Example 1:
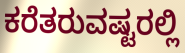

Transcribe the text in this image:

ಕರೆತರುವಷ್ಟರಲ್ಲಿ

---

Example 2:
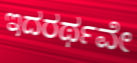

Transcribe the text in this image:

ಇದರರ್ಥವೇ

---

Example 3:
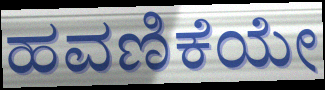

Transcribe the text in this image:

ಹವಣಿಕೆಯೇ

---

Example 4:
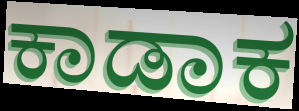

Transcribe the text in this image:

ಕಾಡಾಕ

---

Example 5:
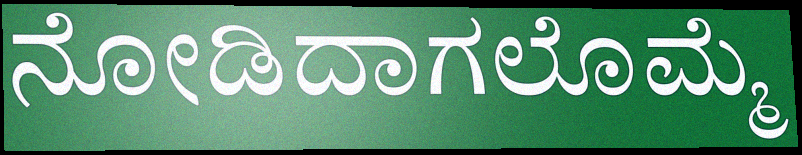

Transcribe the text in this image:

ನೋಡಿದಾಗಲೊಮ್ಮೆ